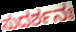
ಸುದರ್ಶನಃ